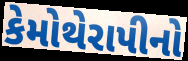
કેમોથેરાપીનો